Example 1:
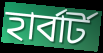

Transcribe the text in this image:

হাৰ্বাৰ্ট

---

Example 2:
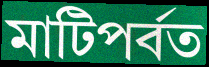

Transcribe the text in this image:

মাটিপৰ্বত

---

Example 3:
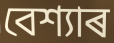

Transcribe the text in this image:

বেশ্যাৰ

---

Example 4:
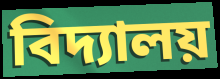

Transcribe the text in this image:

বিদ্যালয়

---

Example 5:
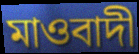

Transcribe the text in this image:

মাওবাদী